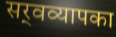
सर्वव्यापका